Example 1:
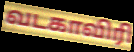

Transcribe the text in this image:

வடகாவிரி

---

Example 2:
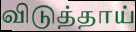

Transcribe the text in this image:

விடுத்தாய்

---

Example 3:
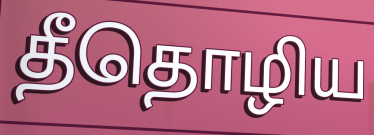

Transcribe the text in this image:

தீதொழிய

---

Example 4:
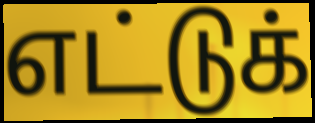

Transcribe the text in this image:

எட்டுக்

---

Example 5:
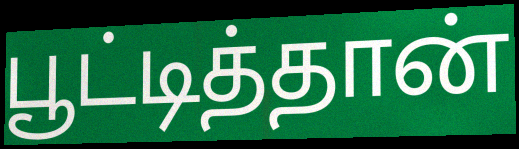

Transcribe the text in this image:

பூட்டித்தான்